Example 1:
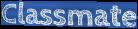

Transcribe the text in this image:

Classmate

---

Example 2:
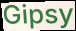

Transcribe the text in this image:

Gipsy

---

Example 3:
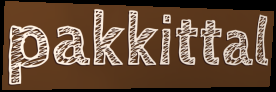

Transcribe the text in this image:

pakkittal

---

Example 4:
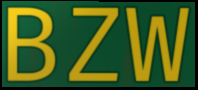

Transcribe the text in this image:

BZW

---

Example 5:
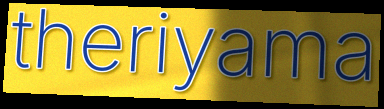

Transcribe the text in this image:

theriyama